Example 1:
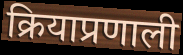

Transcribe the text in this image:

क्रियाप्रणाली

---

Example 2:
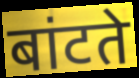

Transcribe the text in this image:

बांटते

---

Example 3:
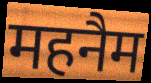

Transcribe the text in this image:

महनैम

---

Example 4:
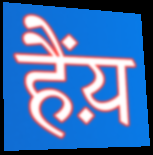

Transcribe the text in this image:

हैंय़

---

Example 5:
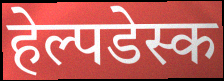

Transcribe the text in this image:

हेल्पडेस्क